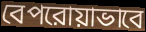
বেপরোয়াভাবে